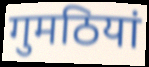
गुमठियां